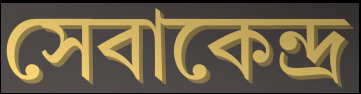
সেবাকেন্দ্র